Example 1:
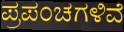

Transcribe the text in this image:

ಪ್ರಪಂಚಗಳಿವೆ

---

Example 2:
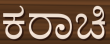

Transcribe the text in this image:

ಕರಾಚಿ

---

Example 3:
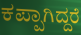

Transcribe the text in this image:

ಕಪ್ಪಾಗಿದ್ದರೆ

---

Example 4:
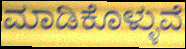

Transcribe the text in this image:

ಮಾಡಿಕೊಳ್ಳುವೆ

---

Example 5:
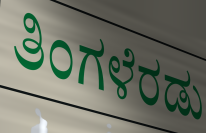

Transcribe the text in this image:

ತಿಂಗಳೆರಡು